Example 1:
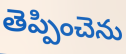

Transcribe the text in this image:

తెప్పించెను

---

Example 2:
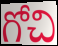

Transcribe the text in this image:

గోచి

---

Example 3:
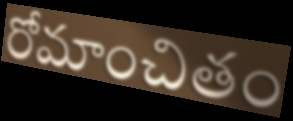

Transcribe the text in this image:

రోమాంచితం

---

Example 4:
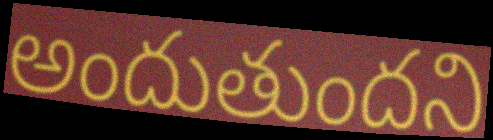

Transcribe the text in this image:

అందుతుందని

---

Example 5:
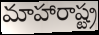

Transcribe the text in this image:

మాహారాష్ట్ర